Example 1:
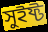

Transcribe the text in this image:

সুইফ্ট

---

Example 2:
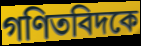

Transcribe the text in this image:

গণিতবিদকে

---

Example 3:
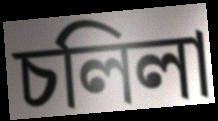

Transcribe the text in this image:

চলিলা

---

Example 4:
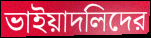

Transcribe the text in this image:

ভাইয়াদলিদের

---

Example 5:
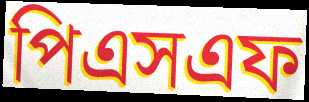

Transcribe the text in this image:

পিএসএফ